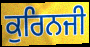
ਕੁਰਿਨਜੀ